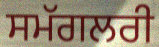
ਸਮੱਗਲਰੀ